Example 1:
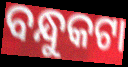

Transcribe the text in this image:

ବନ୍ଧୁକଟା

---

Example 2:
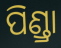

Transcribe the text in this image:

ପିଣ୍ଡ୍ରା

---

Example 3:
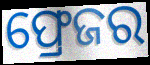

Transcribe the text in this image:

ଫ୍ରେଜର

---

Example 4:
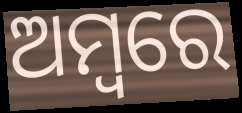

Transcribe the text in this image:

ଅମ୍ବରେ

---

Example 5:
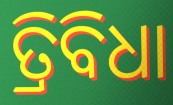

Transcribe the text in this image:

ତ୍ରିବିଧା